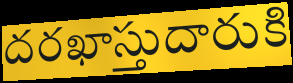
దరఖాస్తుదారుకి